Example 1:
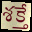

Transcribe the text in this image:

శక్తే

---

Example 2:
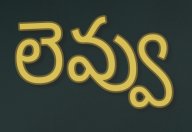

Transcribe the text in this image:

లెవ్వు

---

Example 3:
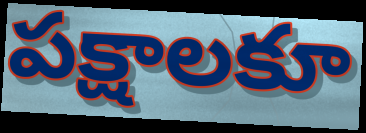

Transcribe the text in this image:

పక్షాలకూ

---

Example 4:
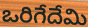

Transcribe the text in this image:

ఒరిగేదేమి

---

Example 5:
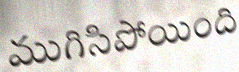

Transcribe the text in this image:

ముగిసిపోయింది